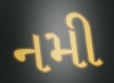
નમી